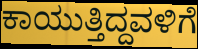
ಕಾಯುತ್ತಿದ್ದವಳಿಗೆ